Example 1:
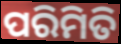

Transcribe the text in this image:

ପରିମିତି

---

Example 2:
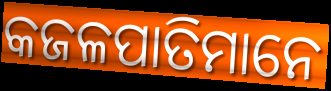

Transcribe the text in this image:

କଜଳପାତିମାନେ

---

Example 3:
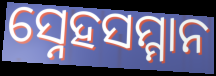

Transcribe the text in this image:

ସ୍ନେହସମ୍ମାନ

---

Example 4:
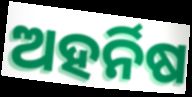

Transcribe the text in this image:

ଅହର୍ନିଷ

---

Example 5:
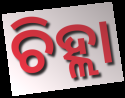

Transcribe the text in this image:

ଚିହ୍ଲା